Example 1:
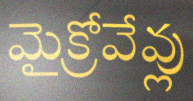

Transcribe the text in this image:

మైక్రోవేవ్లు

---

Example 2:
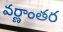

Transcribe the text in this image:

వర్ణాంతర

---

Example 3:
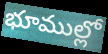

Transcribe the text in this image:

భూముల్లో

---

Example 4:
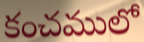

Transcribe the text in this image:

కంచములో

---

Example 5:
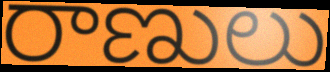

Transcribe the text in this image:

రాణులు